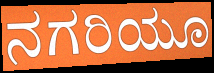
ನಗರಿಯೂ